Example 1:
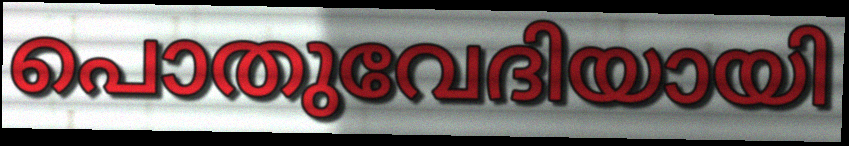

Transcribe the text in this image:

പൊതുവേദിയായി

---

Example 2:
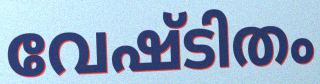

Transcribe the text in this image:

വേഷ്ടിതം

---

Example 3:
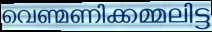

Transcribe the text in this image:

വെണ്മണിക്കമ്മലിട്ട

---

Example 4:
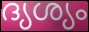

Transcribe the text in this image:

ദ്യശ്യം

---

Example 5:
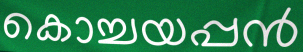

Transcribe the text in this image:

കൊച്ചയപ്പൻ